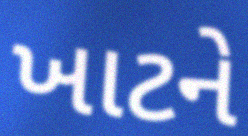
ખાટને